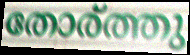
തോര്ത്തു